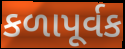
કળાપૂર્વક